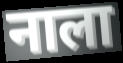
नाला